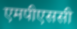
एमपीएससी